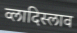
व्लादिस्लाव